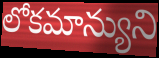
లోకమాన్యుని